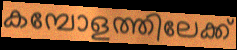
കമ്പോളത്തിലേക്ക്